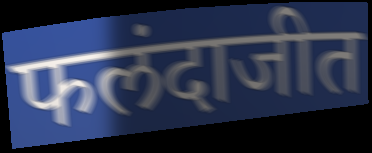
फलंदाजीत